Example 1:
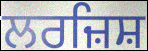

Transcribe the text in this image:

ਲਰਜ਼ਿਸ਼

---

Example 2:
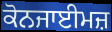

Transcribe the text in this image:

ਕੋਨਜਾਈਮਜ਼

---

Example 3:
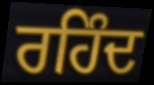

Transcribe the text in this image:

ਰਹਿੰਦ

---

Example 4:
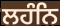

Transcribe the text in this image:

ਲਹੰਨਿ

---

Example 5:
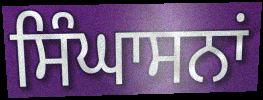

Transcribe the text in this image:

ਸਿੰਘਾਸਨਾਂ